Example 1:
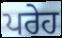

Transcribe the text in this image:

ਪਰੇਹ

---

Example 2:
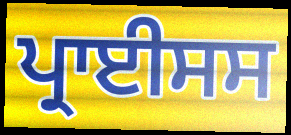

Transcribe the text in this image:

ਪ੍ਰਾਈਸਸ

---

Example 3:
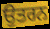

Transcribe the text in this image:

ਉਤਰਨ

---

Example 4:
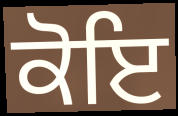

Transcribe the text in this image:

ਕੋਇ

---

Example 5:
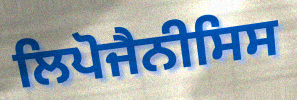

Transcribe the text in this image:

ਲਿਪੋਜੈਨੀਸਿਸ